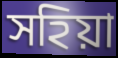
সহিয়া